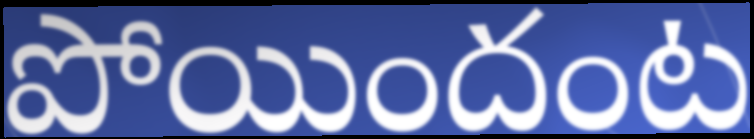
పోయిందంట